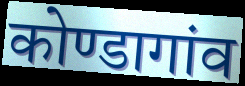
कोण्डागांव